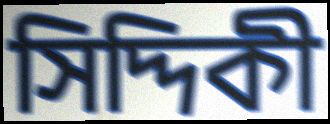
সিদ্দিকী